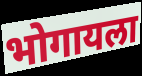
भोगायला